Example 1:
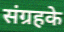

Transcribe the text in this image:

संग्रहके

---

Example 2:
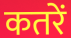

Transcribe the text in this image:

कतरें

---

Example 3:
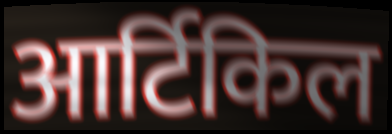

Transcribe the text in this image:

आर्टिकिल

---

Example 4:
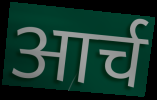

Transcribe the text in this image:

आर्च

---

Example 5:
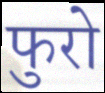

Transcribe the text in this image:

फुरो